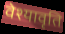
वेश्यावृति